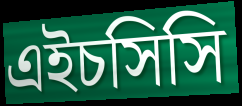
এইচসিসি